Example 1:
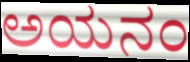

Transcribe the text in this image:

ಅಯನಂ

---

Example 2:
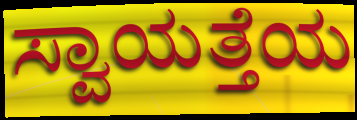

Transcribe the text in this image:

ಸ್ವಾಯತ್ತೆಯ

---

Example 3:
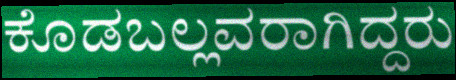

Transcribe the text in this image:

ಕೊಡಬಲ್ಲವರಾಗಿದ್ದರು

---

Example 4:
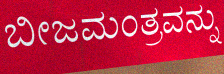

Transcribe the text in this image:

ಬೀಜಮಂತ್ರವನ್ನು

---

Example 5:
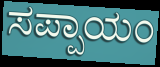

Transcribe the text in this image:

ಸಪ್ಪಾಯಂ